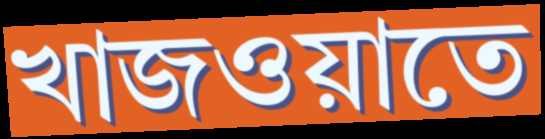
খাজওয়াতে